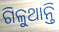
ଗିଳୁଥାନ୍ତି